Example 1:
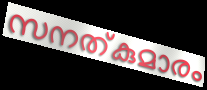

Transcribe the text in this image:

സനത്കുമാരം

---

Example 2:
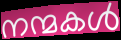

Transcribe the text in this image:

നന്മകൾ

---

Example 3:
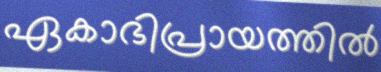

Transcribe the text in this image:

ഏകാഭിപ്രായത്തിൽ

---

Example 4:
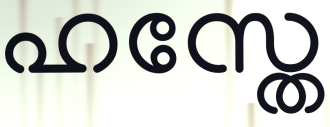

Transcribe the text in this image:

ഹസ്തേ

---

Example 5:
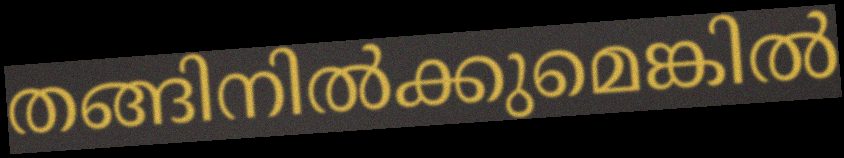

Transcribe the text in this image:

തങ്ങിനിൽക്കുമെങ്കിൽ